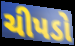
ચીપડો